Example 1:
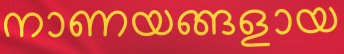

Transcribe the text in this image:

നാണയങ്ങളായ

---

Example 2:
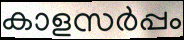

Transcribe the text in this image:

കാളസർപ്പം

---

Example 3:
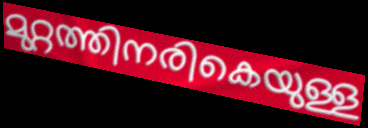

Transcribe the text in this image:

മുറ്റത്തിനരികെയുള്ള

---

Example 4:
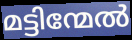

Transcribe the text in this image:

മട്ടിന്മേൽ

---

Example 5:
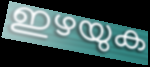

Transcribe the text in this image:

ഇഴയുക